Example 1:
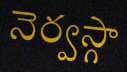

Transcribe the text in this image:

నెర్వస్గా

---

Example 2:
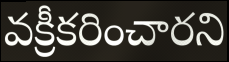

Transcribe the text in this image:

వక్రీకరించారని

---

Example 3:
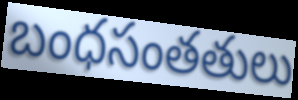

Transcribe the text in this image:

బంధసంతతులు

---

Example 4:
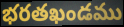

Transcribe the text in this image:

భరతఖండము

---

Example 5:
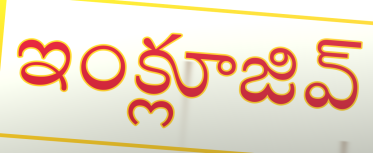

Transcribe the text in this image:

ఇంక్లూజివ్